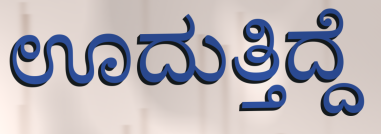
ಊದುತ್ತಿದ್ದೆ